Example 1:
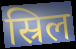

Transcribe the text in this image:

स्रिल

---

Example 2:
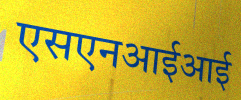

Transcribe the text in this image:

एसएनआईआई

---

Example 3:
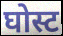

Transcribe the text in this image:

घोस्ट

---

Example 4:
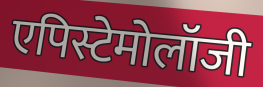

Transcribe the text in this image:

एपिस्टेमोलॉजी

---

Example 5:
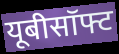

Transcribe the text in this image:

यूबीसॉफ्ट